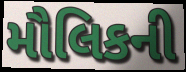
મૌલિકની